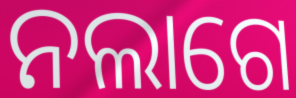
ନଲାଗେ